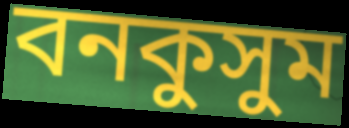
বনকুসুম